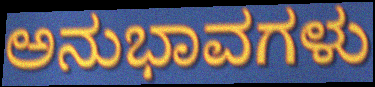
ಅನುಭಾವಗಳು